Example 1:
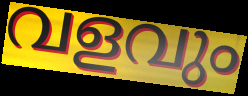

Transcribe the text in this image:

വളവും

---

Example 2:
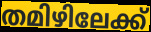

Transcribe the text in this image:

തമിഴിലേക്ക്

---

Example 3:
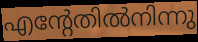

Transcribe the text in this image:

എന്റേതിൽനിന്നു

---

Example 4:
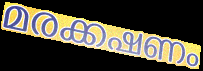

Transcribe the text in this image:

മരക്കഷണം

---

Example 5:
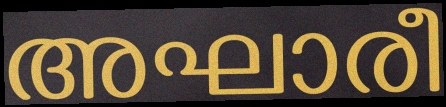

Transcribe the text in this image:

അഘാരീ